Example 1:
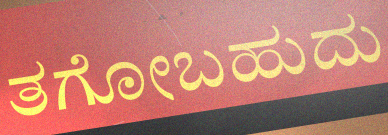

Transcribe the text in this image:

ತಗೋಬಹುದು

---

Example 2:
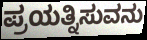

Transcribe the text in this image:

ಪ್ರಯತ್ನಿಸುವನು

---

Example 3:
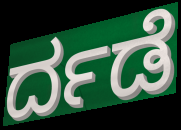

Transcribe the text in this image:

ರ್ದಡೆ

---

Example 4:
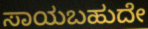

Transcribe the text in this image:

ಸಾಯಬಹುದೇ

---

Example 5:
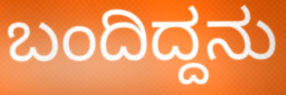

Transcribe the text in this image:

ಬಂದಿದ್ದನು